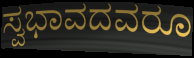
ಸ್ವಭಾವದವರೂ